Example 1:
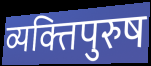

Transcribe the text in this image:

व्यक्तिपुरुष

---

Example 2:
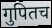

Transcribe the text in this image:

गुपितच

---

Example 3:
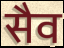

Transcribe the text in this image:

सैव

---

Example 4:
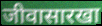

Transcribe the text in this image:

जीवासारखा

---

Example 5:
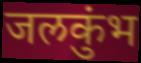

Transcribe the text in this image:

जलकुंभ